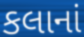
કલાનાં